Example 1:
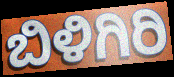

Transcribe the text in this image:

ಬಿಳಿಗಿರಿ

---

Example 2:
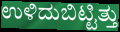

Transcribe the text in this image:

ಉಳಿದುಬಿಟ್ಟಿತ್ತು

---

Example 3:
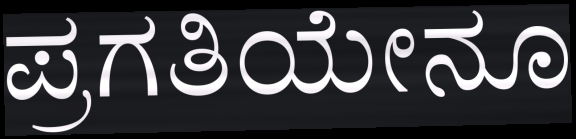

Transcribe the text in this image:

ಪ್ರಗತಿಯೇನೂ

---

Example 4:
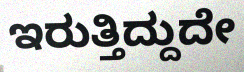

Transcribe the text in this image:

ಇರುತ್ತಿದ್ದುದೇ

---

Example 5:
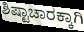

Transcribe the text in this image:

ಶಿಷ್ಟಾಚಾರಕ್ಕಾಗಿ